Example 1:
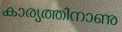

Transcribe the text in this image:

കാര്യത്തിനാണു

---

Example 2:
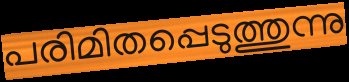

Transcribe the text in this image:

പരിമിതപ്പെടുത്തുന്നു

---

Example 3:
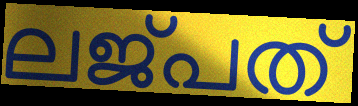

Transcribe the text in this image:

ലജ്പത്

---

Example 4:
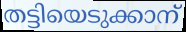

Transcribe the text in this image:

തട്ടിയെടുക്കാന്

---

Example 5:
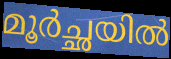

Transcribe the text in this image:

മൂർച്ഛയിൽ